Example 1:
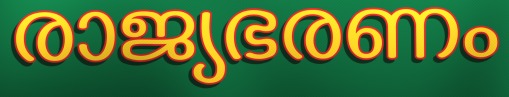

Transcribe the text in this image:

രാജ്യഭരണം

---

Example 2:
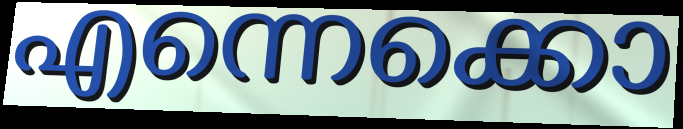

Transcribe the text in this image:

എന്നെക്കൊ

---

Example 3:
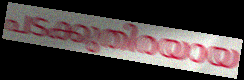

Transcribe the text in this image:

പടക്കുതിരയായ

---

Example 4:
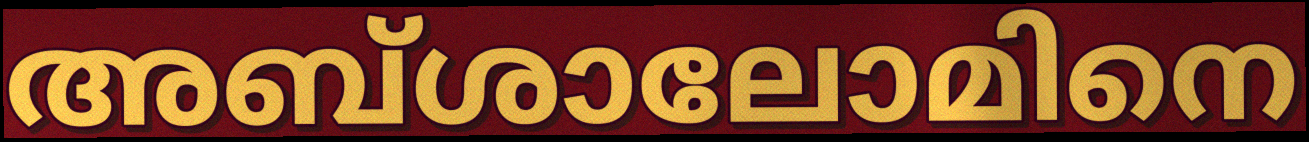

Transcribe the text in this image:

അബ്ശാലോമിനെ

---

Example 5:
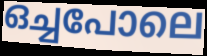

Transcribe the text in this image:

ഒച്ചപോലെ